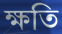
ক্ষতি